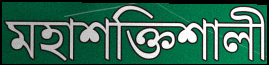
মহাশক্তিশালী